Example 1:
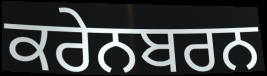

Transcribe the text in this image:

ਕਰੇਨਬਰਨ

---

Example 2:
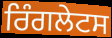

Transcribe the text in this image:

ਰਿੰਗਲੇਟਸ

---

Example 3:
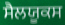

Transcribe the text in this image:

ਸੈਲਯੂਕਸ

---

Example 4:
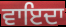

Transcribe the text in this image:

ਵਾਇਦਾ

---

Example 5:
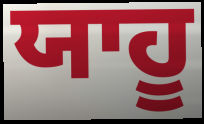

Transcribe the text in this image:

ਯਾਹੂ